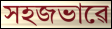
সহজভাৱে